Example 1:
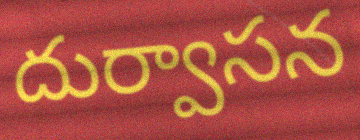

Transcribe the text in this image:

దుర్వాసన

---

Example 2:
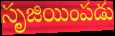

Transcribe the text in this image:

సృజియింపడు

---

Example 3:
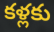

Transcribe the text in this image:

కళ్లకు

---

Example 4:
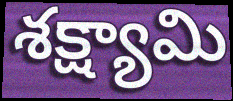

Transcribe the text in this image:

శక్ష్యామి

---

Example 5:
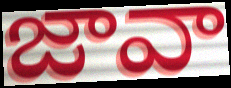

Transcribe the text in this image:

జావా